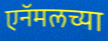
एनॅमलच्या